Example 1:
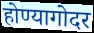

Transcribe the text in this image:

होण्यागोदर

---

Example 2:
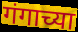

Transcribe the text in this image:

गंगाच्या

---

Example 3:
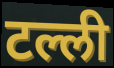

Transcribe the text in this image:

टल्ली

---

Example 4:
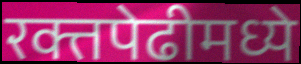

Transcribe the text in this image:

रक्तपेढीमध्ये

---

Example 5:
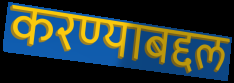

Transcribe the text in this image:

करण्याबद्दल